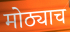
मोठ्याच